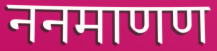
ननमाणण